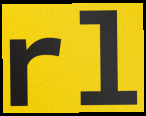
rl